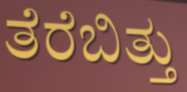
ತೆರೆಬಿತ್ತು